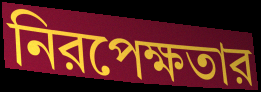
নিরপেক্ষতার